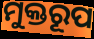
ମୁକ୍ତରୂପ